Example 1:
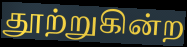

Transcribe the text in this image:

தூற்றுகின்ற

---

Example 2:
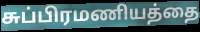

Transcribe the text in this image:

சுப்பிரமணியத்தை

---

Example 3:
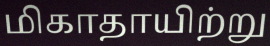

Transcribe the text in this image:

மிகாதாயிற்று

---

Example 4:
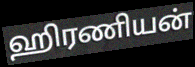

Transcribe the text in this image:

ஹிரணியன்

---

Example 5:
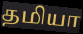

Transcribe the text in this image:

தமியா